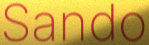
Sando